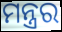
ମନ୍ତ୍ରର